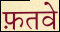
फ़तवे